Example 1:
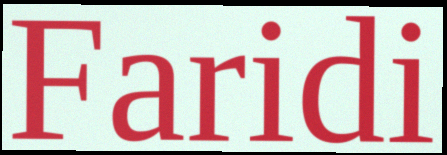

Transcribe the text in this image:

Faridi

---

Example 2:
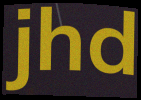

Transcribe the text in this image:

jhd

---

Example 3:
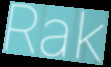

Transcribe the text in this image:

Rak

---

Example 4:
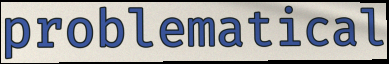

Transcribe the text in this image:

problematical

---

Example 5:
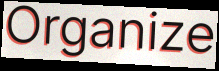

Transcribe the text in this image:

Organize